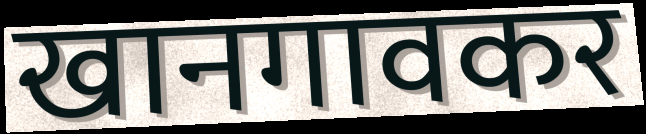
खानगावकर